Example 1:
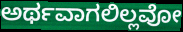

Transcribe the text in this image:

ಅರ್ಥವಾಗಲಿಲ್ಲವೋ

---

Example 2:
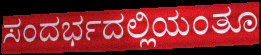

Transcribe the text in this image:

ಸಂದರ್ಭದಲ್ಲಿಯಂತೂ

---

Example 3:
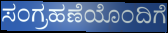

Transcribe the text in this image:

ಸಂಗ್ರಹಣೆಯೊಂದಿಗೆ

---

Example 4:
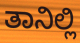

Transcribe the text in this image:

ತಾನಿಲ್ಲಿ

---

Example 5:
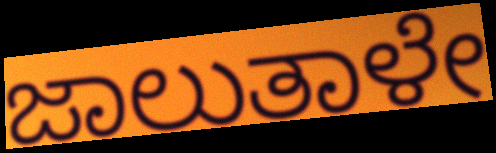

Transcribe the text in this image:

ಜಾಲುತಾಳೇ